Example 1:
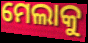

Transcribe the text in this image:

ମେଲାକୁ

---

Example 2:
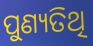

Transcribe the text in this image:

ପୁଣ୍ୟତିଥି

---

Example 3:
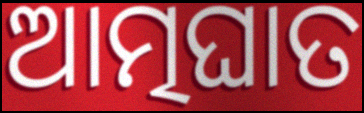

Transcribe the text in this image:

ଆତ୍ମଘାତ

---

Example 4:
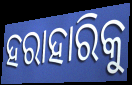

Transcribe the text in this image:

ହରାହାରିକୁ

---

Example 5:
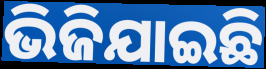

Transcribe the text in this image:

ଭିଜିଯାଇଛି